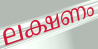
ലക്ഷണം